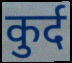
कुर्द